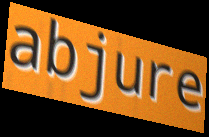
abjure